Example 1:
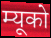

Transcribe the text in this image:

म्यूको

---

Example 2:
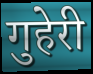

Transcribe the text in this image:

गुहेरी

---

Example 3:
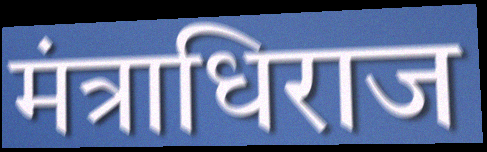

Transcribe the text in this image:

मंत्राधिराज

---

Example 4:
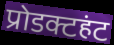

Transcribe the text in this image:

प्रोडक्टहंट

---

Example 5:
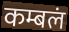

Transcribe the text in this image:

कम्बलं